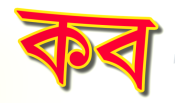
কব